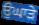
ਉਘਾੜੇ